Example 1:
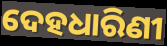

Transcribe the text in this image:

ଦେହଧାରିଣୀ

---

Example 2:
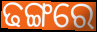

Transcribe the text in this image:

ଢଙ୍ଗରେ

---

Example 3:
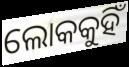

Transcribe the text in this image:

ଲୋକକୁହିଁ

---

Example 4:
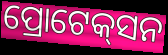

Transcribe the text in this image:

ପ୍ରୋଟେକ୍‌ସନ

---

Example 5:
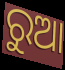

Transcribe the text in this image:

ରୁଆ